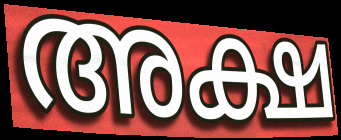
അക്ഷ